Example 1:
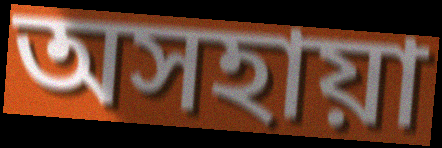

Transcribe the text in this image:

অসহায়া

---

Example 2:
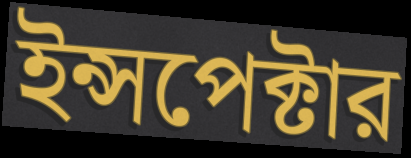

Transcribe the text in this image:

ইন্সপেক্টার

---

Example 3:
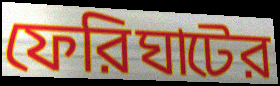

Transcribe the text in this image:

ফেরিঘাটের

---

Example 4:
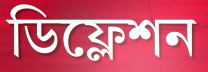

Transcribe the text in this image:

ডিফ্লেশন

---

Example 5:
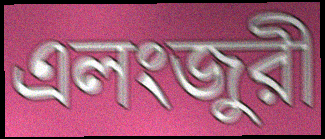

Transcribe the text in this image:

এলংজুরী